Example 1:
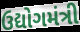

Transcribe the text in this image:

ઉદ્યોગમંત્રી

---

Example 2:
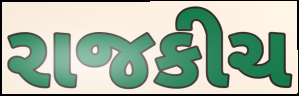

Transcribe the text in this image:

રાજકીચ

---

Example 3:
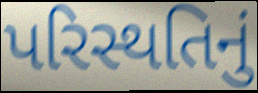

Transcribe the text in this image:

પરિસ્થતિનું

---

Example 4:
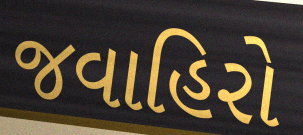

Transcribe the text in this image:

જવાહિરો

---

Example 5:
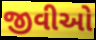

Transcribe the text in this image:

જીવીઓ